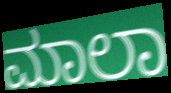
ಮಾಲಾ